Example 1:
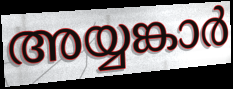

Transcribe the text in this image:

അയ്യങ്കാർ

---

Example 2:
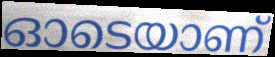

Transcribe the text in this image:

ഓടെയാണ്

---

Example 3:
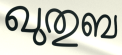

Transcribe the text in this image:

ഖുതുബ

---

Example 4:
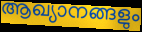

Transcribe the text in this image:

ആഖ്യാനങ്ങളും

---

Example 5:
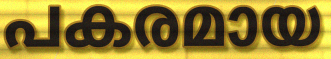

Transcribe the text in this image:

പകരമായ